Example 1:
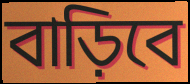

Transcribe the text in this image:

বাড়িবে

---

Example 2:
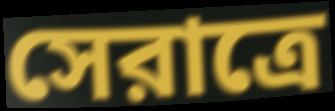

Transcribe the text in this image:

সেরাত্রে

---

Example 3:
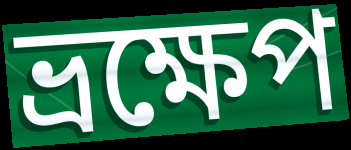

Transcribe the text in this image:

ভ্রক্ষেপ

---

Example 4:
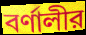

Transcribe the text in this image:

বর্ণালীর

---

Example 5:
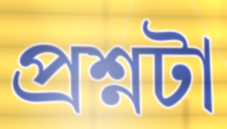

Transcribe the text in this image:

প্রশ্নটা